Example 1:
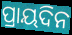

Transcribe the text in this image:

ପ୍ରାୟଦିନ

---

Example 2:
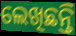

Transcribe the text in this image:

ଲେଖିଛନ୍ତି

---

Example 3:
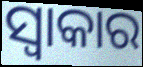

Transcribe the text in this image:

ସ୍ୱାକାର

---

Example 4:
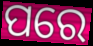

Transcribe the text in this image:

ପରେ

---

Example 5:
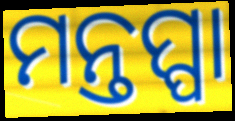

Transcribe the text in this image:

ମନ୍ତପ୍ପା